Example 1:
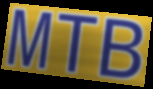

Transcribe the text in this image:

MTB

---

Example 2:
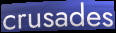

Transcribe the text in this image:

crusades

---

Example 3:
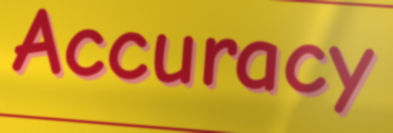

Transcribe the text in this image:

Accuracy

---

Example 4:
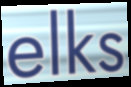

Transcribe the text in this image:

elks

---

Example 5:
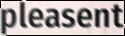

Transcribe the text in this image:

pleasent